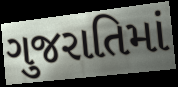
ગુજરાતિમાં